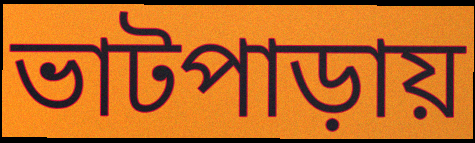
ভাটপাড়ায়